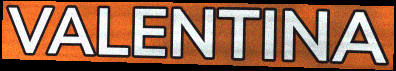
VALENTINA